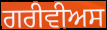
ਗਰੀਵੀਅਸ